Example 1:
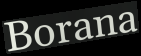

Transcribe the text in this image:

Borana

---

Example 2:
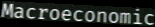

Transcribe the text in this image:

Macroeconomic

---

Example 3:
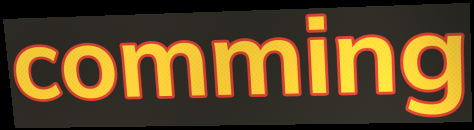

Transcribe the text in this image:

comming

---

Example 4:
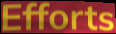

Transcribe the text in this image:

Efforts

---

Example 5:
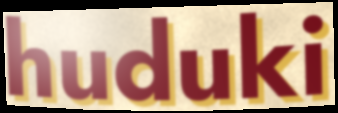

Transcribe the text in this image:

huduki